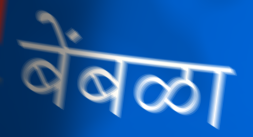
बेंबळा